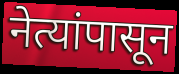
नेत्यांपासून